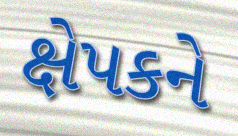
ક્ષેપકને